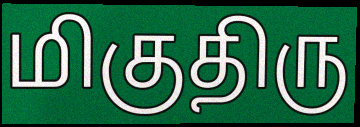
மிகுதிரு